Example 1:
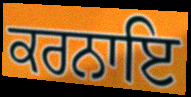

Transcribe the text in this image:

ਕਰਨਾਇ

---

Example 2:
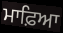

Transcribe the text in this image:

ਮਾਫ਼ਿਆ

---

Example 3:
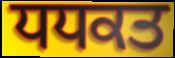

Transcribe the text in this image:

ਧਧਕਤ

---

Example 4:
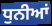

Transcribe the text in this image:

ਧੁਨੀਆਂ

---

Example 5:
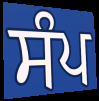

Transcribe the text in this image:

ਸੰਪ